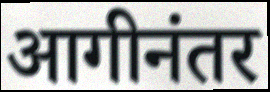
आगीनंतर